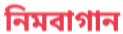
নিমবাগান